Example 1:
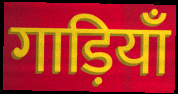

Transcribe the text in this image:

गाड़ियाँ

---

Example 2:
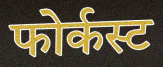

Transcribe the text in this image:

फोर्कस्ट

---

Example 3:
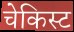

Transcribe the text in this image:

चेकिस्ट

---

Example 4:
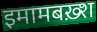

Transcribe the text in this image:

इमामबख़्श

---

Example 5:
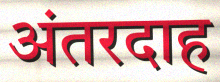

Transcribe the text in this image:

अंतरदाह